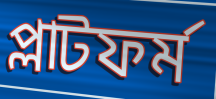
প্লাটফর্ম